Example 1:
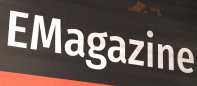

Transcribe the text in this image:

EMagazine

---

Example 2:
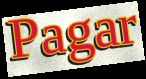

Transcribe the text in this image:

Pagar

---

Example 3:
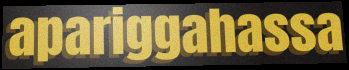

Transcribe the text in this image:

apariggahassa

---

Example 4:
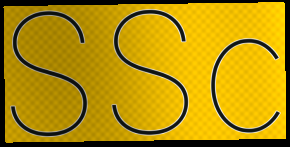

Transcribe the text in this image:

SSc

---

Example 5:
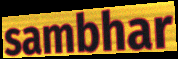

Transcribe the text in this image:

sambhar